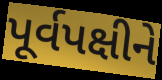
પૂર્વપક્ષીને